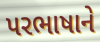
પરભાષાને